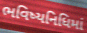
ભવિષ્યનિધિમાં